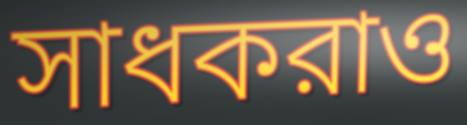
সাধকরাও